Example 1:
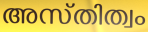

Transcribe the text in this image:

അസ്‌തിത്വം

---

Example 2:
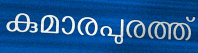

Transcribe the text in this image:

കുമാരപുരത്ത്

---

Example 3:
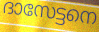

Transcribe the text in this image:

ദാസേട്ടനെ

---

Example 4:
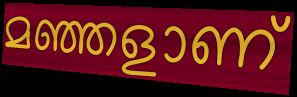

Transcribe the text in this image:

മഞ്ഞളാണ്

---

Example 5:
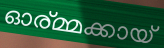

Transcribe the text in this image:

ഓര്മ്മക്കായ്